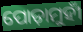
ପୋଡ଼ାମୁହୀଁ